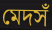
মেদসঁ